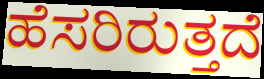
ಹೆಸರಿರುತ್ತದೆ